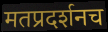
मतप्रदर्शनच